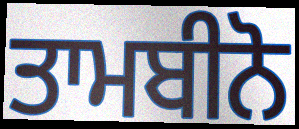
ਤਾਮਬੀਨੋ